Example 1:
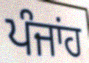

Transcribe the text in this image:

ਪੰਜਾਂਹ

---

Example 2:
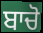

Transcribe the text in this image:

ਬਾਚੋ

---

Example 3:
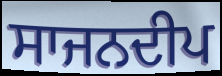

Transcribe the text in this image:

ਸਾਜਨਦੀਪ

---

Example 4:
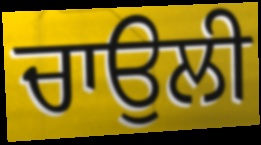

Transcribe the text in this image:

ਚਾਉਲੀ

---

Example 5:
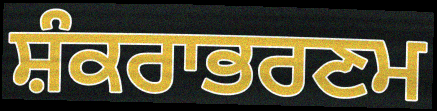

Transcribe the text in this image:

ਸ਼ੰਕਰਾਭਰਣਮ